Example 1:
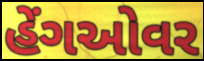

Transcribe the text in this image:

હેંગઓવર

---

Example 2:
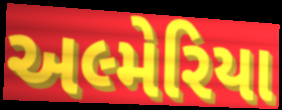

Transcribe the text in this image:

અલ્મેરિયા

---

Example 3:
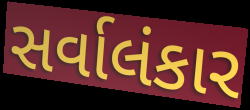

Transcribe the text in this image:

સર્વાલંકાર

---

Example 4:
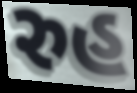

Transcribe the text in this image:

રુહ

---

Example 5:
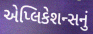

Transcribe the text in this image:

એપ્લિકેશન્સનું